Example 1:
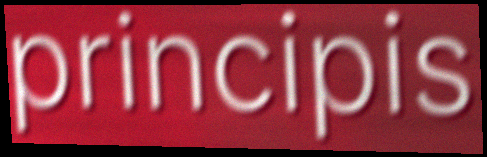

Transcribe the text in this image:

principis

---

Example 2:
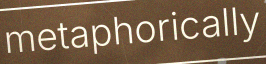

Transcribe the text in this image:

metaphorically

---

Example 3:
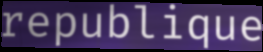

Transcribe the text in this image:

republique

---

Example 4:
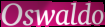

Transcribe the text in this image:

Oswaldo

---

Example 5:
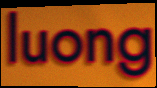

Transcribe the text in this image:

luong